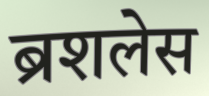
ब्रशलेस